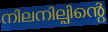
നിലനില്പിന്റെ